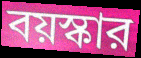
বয়স্কার